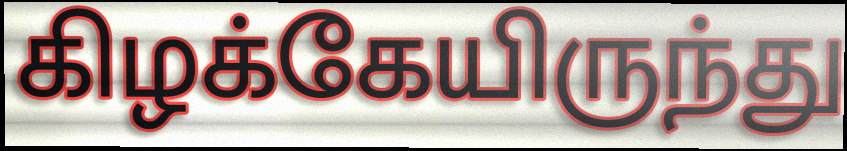
கிழக்கேயிருந்து